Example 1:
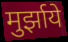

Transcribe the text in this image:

मुर्झाये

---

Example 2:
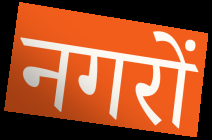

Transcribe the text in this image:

नगरों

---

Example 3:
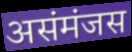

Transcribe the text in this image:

असंमंजस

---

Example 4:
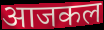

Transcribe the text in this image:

आजकल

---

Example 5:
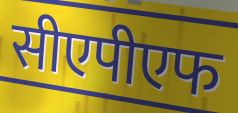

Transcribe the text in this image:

सीएपीएफ